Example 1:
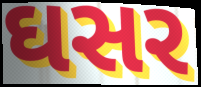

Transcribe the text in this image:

ઘસર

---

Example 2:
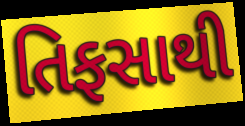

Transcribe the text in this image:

તિફસાથી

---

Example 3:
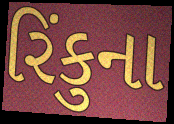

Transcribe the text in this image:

રિંકુના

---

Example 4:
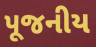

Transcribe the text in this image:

પૂજનીય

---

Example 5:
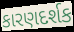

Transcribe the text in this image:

કારણદર્શક